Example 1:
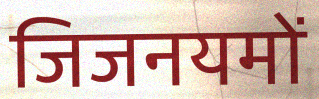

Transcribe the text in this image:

जिजनयमों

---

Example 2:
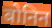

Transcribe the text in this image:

बोनिन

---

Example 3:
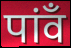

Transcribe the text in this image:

पांँव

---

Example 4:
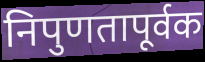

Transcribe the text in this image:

निपुणतापूर्वक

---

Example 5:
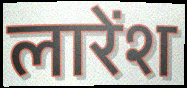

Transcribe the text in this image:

लारेंश